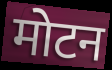
मोटन